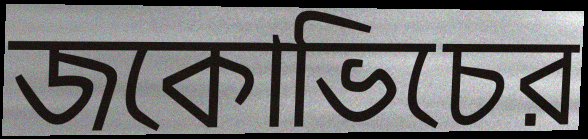
জকোভিচের